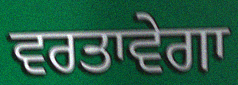
ਵਰਤਾਵੇਗਾ